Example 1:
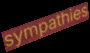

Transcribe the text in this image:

sympathies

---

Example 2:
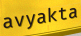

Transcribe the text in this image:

avyakta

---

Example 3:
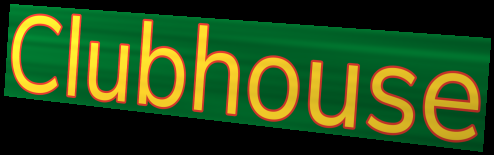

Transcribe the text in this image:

Clubhouse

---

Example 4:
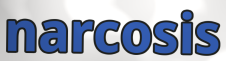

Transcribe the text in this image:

narcosis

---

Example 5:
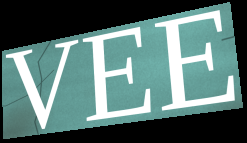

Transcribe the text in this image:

VEE